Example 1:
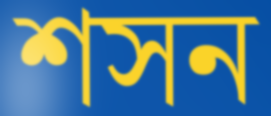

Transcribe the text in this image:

শসন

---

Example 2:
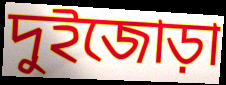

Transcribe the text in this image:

দুইজোড়া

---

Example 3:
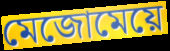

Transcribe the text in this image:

মেজোমেয়ে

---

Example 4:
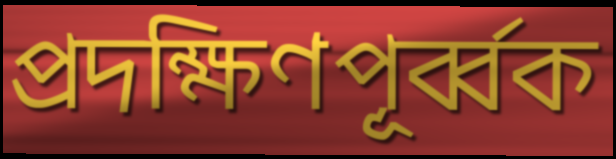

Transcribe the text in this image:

প্রদক্ষিণপূর্ব্বক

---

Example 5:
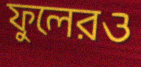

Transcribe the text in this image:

ফুলেরও